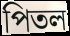
পিতল